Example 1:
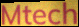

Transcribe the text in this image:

Mtech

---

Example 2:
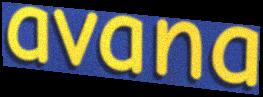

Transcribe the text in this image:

avana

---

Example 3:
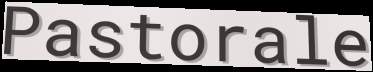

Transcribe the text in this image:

Pastorale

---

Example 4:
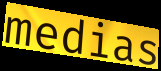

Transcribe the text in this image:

medias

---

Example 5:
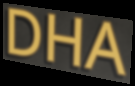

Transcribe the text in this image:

DHA